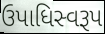
ઉપાધિસ્વરૂપ